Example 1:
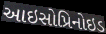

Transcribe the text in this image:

આઇસોપ્રિનોઇડ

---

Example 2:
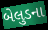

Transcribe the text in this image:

બેલુડના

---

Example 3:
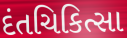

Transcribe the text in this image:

દંતચિકિત્સા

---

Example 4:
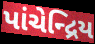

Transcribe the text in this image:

પાંચેન્દ્રિય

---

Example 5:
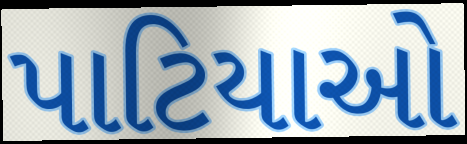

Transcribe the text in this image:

પાટિયાઓ